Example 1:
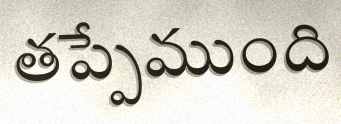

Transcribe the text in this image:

తప్పేముంది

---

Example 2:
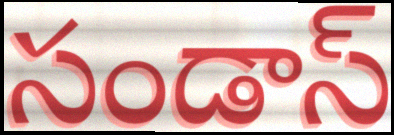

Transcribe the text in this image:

సండాస్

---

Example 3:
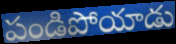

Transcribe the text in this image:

పండిపోయాడు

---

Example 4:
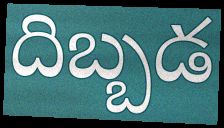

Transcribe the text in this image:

దిబ్బడ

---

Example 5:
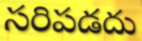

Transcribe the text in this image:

సరిపడదు